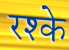
रश्के